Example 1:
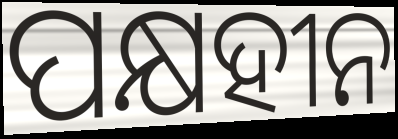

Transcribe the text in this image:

ପକ୍ଷହୀନ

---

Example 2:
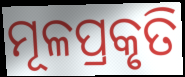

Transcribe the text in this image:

ମୂଳପ୍ରକୃତି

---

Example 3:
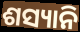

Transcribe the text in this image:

ଶସ୍ୟାନି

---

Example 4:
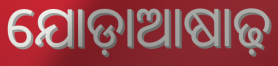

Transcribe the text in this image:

ଯୋଡ଼ାଆଷାଢ଼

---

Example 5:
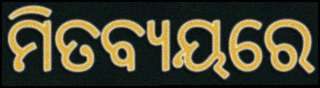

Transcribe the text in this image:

ମିତବ୍ୟୟରେ